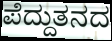
ಪೆದ್ದುತನದ